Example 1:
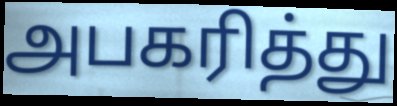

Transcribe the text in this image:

அபகரித்து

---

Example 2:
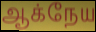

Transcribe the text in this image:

ஆக்நேய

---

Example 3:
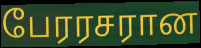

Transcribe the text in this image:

பேரரசரான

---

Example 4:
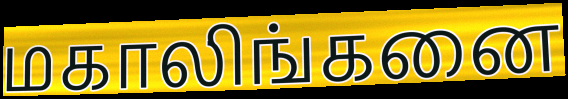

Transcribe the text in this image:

மகாலிங்கனை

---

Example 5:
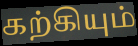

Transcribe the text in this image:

கற்கியும்